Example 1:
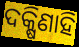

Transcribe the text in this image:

ଦକ୍ଷିଣାହି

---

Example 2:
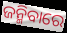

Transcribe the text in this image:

ଜନ୍ମିବାରେ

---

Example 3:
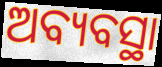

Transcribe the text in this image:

ଅବ୍ୟବସ୍ଥା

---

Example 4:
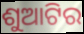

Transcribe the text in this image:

ଶୁଆଟିର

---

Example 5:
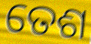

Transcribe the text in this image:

ତେଶ